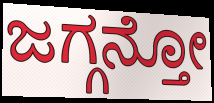
ಜಗ್ಗನ್ತೋ